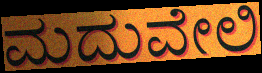
ಮದುವೇಲಿ